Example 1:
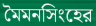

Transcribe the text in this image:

মৈমনসিংহের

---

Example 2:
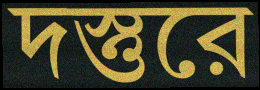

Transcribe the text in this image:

দস্তুরে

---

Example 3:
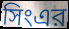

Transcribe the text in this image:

সিংএর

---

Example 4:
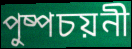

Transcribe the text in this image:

পুষ্পচয়নী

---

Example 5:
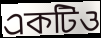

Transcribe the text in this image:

একটিও